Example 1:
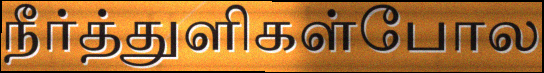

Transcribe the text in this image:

நீர்த்துளிகள்போல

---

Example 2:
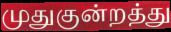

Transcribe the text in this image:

முதுகுன்றத்து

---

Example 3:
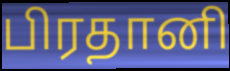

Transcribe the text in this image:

பிரதானி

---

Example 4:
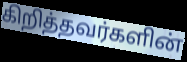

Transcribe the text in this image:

கிறித்தவர்களின்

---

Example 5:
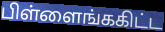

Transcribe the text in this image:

பிள்ளைங்ககிட்ட